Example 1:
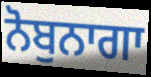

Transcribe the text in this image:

ਨੋਬੁਨਾਗਾ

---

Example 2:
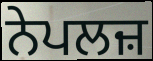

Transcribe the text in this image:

ਨੇਪਲਜ਼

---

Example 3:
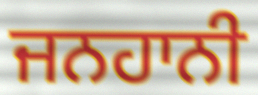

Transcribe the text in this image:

ਜਨਹਾਨੀ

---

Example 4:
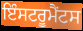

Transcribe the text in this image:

ਇੰਸਟਰੂਮੈਂਟਸ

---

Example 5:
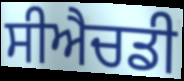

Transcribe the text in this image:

ਸੀਐਚਡੀ